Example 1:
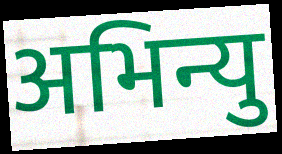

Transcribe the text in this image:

अभिन्यु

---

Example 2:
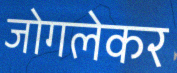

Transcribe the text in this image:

जोगलेकर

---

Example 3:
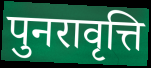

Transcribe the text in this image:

पुनरावृत्ति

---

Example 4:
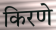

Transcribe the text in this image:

किरणे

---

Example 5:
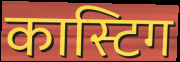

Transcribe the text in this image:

कास्टिग